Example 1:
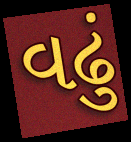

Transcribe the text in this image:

વઢું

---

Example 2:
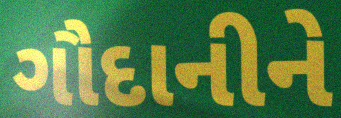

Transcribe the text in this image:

ગૌદાનીને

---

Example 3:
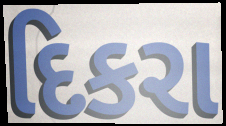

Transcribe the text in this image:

દિકરા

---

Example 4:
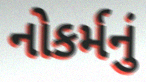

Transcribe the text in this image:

નોકર્મનું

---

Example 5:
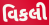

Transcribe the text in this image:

વિકલી